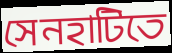
সেনহাটিতে